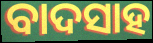
ବାଦସାହ